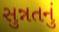
સુન્નતનું